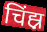
चिंह्न